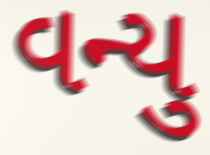
વન્યુ